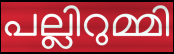
പല്ലിറുമ്മി